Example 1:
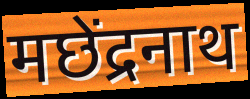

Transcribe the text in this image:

मछेंद्रनाथ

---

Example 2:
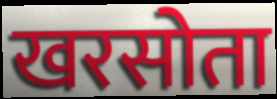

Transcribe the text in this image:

खरसोता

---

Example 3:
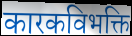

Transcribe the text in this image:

कारकविभक्ति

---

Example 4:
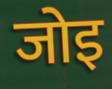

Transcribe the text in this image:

जोइ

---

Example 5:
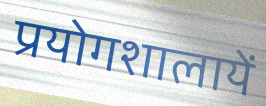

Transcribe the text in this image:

प्रयोगशालायें